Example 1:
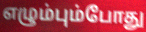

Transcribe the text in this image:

எழும்பும்போது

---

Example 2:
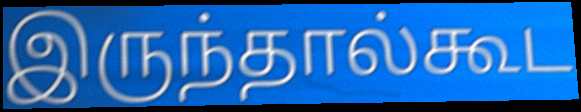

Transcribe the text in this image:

இருந்தால்கூட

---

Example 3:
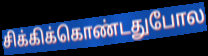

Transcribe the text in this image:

சிக்கிக்கொண்டதுபோல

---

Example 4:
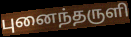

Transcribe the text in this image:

புனைந்தருளி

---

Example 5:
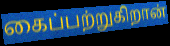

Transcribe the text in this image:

கைப்பற்றுகிறான்